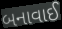
બનાવાઈ